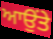
ਆਉਂਤੇ